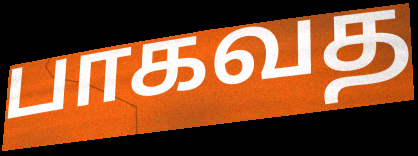
பாகவத